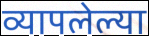
व्यापलेल्या